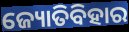
ଜ୍ୟୋତିବିହାର